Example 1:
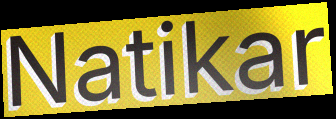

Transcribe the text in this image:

Natikar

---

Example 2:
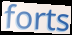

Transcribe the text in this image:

forts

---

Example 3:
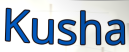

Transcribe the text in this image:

Kusha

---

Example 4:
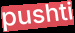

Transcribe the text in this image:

pushti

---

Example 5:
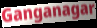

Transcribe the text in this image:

Ganganagar